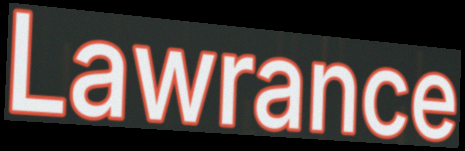
Lawrance